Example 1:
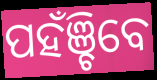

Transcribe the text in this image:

ପହଁଞ୍ଚିବେ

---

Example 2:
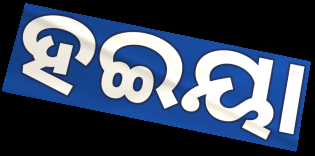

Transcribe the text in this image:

ହଇୟା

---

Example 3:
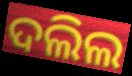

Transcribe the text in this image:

ଦଲିଲ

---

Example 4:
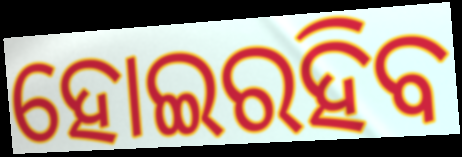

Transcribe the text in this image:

ହୋଇରହିବ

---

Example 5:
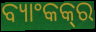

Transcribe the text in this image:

ବ୍ୟାଂକକ୍‍ର